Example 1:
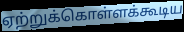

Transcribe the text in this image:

ஏற்றுக்கொள்ளக்கூடிய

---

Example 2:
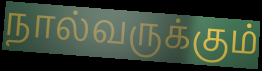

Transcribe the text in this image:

நால்வருக்கும்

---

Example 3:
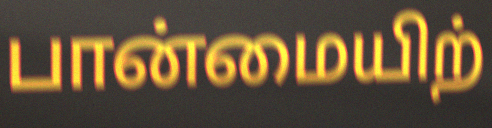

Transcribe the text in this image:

பான்மையிற்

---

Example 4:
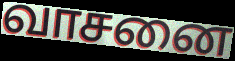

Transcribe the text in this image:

வாசனை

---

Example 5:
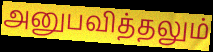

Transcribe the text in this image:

அனுபவித்தலும்